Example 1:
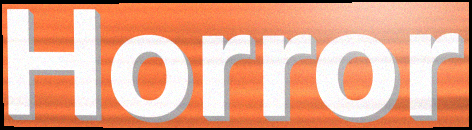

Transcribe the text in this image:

Horror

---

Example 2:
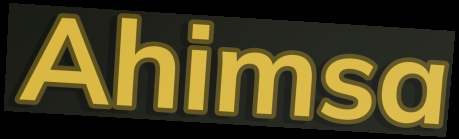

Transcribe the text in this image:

Ahimsa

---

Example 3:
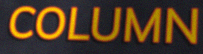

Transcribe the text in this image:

COLUMN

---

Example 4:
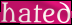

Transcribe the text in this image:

hated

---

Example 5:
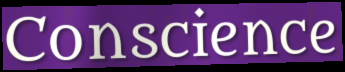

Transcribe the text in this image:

Conscience